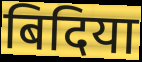
बिदिया